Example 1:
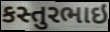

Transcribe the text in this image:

કસ્તુરભાઇ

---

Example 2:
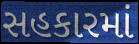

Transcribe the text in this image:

સહકારમાં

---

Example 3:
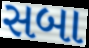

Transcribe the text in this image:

સબા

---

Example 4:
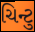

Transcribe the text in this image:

ચિન્ટુ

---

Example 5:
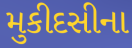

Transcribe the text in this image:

મુકીદસીના